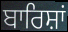
ਬਾਰਿਸ਼ਾਂ